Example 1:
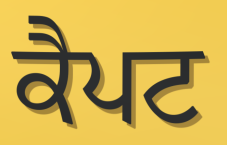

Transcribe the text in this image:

ਕੈਪਟ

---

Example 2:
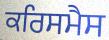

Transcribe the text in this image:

ਕਰਿਸਮੈਸ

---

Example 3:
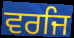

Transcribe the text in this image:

ਵਰਜਿ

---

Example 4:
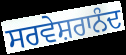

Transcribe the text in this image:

ਸਰਵੇਸ਼ਰਾਨੰਦ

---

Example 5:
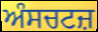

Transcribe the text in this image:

ਅੰਸਚਟਜ਼